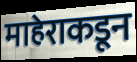
माहेराकडून